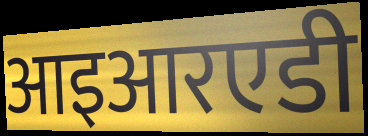
आइआरएडी